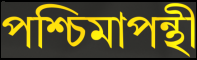
পশ্চিমাপন্থী